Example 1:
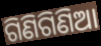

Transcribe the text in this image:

ଗିଣିଗିଣିଆ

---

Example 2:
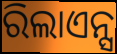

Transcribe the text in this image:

ରିଲାଏନ୍ସ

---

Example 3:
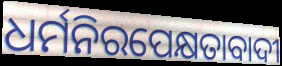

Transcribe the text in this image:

ଧର୍ମନିରପେକ୍ଷତାବାଦୀ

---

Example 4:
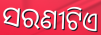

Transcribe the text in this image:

ସରଣୀଟିଏ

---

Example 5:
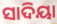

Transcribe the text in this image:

ସାଦିୟା